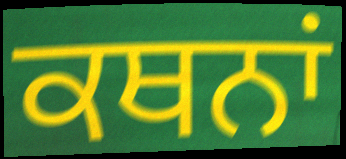
ਕਥਨਾਂ